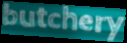
butchery